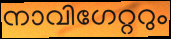
നാവിഗേറ്ററും